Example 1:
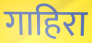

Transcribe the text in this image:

गाहिरा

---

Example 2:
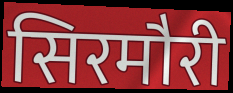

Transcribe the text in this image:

सिरमौरी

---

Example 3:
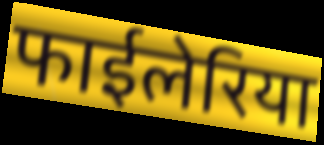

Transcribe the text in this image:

फाईलेरिया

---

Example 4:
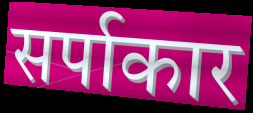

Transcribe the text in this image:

सर्पाकार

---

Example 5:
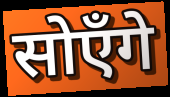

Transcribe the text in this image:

सोएँगे